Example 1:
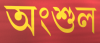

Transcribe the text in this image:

অংশুল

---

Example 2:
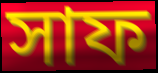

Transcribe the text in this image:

সাফ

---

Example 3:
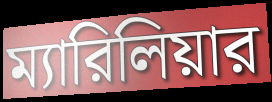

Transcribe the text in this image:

ম্যারিলিয়ার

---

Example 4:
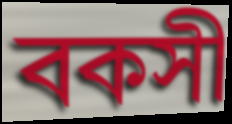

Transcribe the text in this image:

বকসী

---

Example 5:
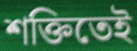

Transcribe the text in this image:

শক্তিতেই